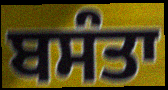
ਬਸੰਤਾ